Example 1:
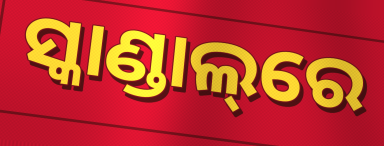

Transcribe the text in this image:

ସ୍କାଣ୍ଡାଲ୍‌ରେ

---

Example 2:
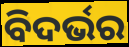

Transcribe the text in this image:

ବିଦର୍ଭର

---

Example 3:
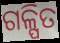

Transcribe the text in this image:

ଗଳ୍ପିତ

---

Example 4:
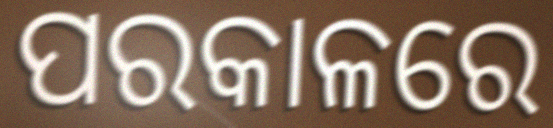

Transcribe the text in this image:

ପରକାଳରେ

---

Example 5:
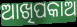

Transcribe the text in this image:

ଆଖିପକାଅ